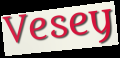
Vesey